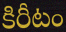
కిరీటం